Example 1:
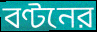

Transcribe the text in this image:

বণ্টনের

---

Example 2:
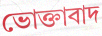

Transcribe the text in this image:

ভোক্তাবাদ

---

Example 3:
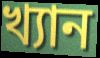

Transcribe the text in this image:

খ্যান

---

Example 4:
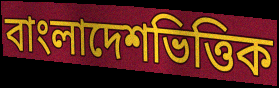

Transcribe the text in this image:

বাংলাদেশভিত্তিক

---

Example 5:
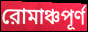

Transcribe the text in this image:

রোমাঞ্চপূর্ণ